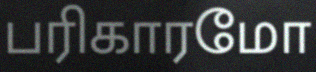
பரிகாரமோ